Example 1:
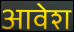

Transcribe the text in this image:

आवेश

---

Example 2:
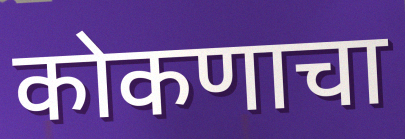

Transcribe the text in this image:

कोकणाचा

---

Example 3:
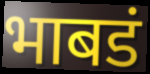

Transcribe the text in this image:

भाबडं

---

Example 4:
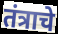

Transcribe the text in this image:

तंत्राचे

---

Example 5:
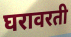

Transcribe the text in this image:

घरावरती